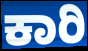
ಕಾರಿ